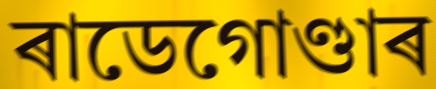
ৰাডেগোণ্ডাৰ